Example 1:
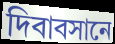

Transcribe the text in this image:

দিবাবসানে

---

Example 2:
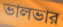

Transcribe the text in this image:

ভালভার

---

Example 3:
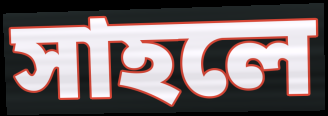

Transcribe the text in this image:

সাহলে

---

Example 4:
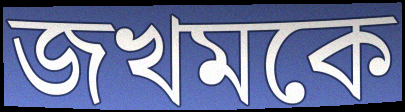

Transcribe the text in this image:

জখমকে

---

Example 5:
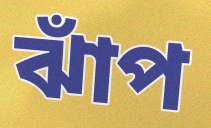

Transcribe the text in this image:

ঝাঁপ